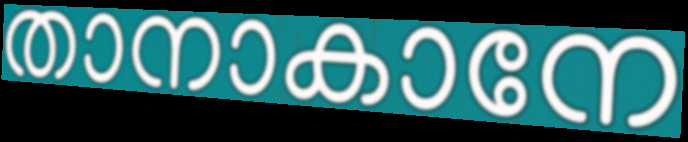
താനാകാനേ